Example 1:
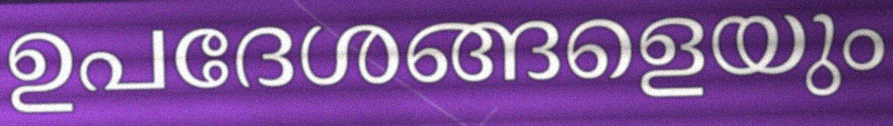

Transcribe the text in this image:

ഉപദേശങ്ങളെയും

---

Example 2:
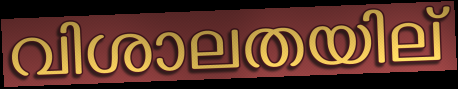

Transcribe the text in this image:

വിശാലതയില്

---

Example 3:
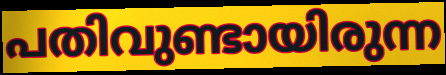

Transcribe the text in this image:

പതിവുണ്ടായിരുന്ന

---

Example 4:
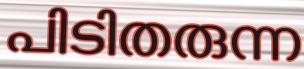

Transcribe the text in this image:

പിടിതരുന്ന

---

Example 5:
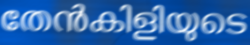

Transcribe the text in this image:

തേൻകിളിയുടെ